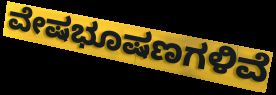
ವೇಷಭೂಷಣಗಳಿವೆ